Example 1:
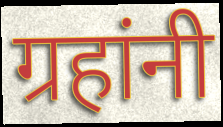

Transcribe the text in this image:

ग्रहांनी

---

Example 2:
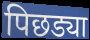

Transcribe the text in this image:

पिछड्या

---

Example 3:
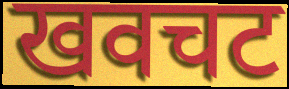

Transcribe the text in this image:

खवचट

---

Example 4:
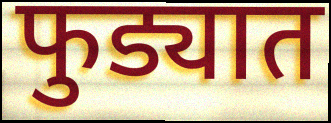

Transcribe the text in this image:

फुड्यात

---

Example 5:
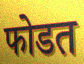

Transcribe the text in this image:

फोडत